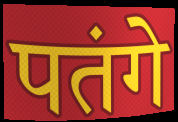
पतंगे